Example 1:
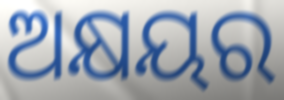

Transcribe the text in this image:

ଅକ୍ଷୟର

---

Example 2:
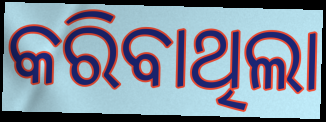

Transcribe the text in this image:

କରିବାଥିଲା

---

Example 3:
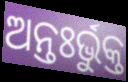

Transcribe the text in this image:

ଅନ୍ତଃର୍ଭୁକ୍ତ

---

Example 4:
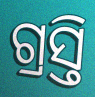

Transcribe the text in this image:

ଗ୍ରସ୍ତି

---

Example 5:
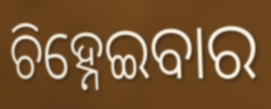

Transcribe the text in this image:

ଚିହ୍ନେଇବାର